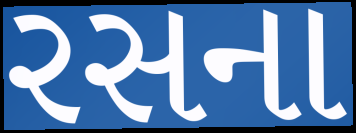
રસના